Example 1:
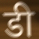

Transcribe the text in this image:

डी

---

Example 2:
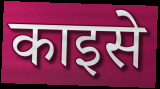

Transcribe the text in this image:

काइसे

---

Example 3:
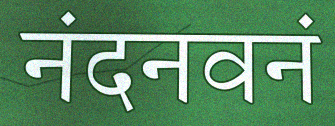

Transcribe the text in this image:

नंदनवनं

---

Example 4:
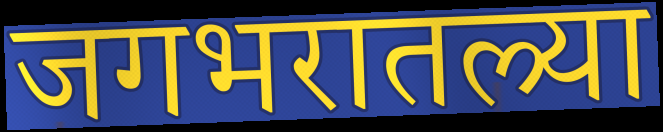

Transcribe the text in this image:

जगभरातल्या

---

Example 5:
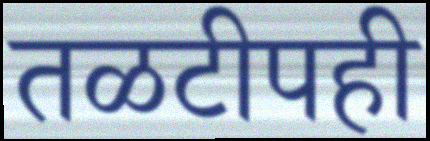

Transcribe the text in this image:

तळटीपही